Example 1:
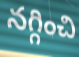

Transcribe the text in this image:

నగ్గించి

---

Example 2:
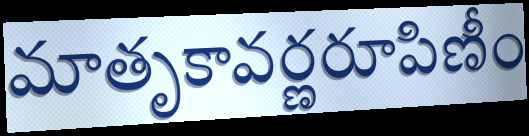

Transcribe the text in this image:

మాతృకావర్ణరూపిణీం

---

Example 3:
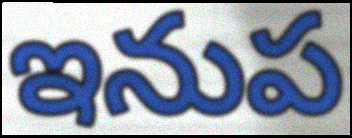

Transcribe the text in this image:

ఇనుప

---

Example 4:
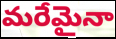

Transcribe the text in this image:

మరేమైనా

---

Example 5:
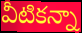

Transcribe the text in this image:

వీటికన్నా